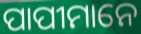
ପାପୀମାନେ